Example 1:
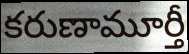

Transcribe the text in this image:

కరుణామూర్తీ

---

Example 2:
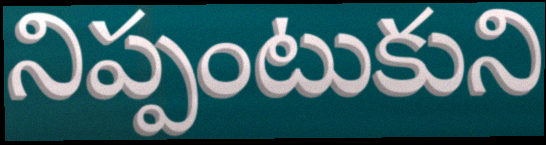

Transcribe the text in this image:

నిప్పంటుకుని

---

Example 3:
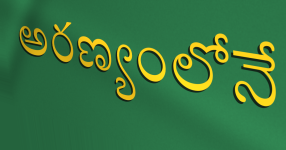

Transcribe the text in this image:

అరణ్యంలోనే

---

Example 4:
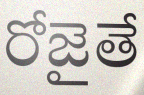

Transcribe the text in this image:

రోజైతే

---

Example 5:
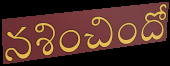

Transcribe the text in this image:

నశించిందో